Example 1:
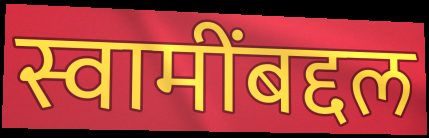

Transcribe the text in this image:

स्वामींबद्दल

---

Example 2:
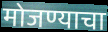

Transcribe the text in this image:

मोजण्याचा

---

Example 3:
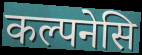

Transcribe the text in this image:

कल्पनेसि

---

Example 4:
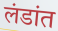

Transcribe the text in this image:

लंडांत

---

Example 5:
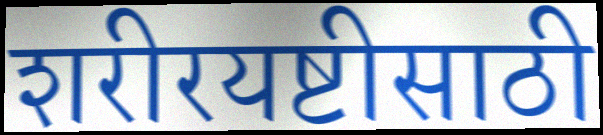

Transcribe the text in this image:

शरीरयष्टीसाठी